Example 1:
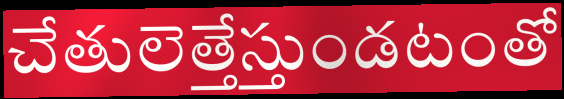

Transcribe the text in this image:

చేతులెత్తేస్తుండటంతో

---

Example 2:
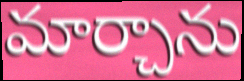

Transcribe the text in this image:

మార్చాను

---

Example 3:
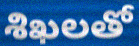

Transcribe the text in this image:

శిఖలతో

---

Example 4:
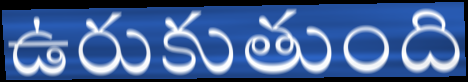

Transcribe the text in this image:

ఉరుకుతుంది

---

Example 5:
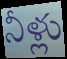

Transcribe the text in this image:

నీళ్లు